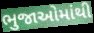
ભુજાઓમાંથી